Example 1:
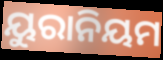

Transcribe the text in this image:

ୟୁରାନିୟମ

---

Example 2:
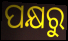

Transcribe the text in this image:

ପକ୍ଷରୁ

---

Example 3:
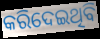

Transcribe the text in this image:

କରିଦେଇଥିବି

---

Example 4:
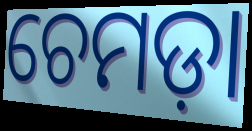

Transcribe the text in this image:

ଚେମଡ଼ା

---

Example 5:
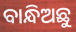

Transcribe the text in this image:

ବାନ୍ଧିଅଛୁ